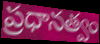
ప్రధానత్వం